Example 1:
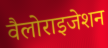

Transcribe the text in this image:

वैलोराइजेशन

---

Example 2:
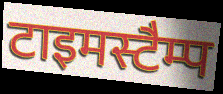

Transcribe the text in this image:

टाइमस्टैम्प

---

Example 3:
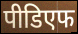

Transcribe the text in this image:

पीडिएफ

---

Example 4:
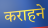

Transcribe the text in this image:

कराहने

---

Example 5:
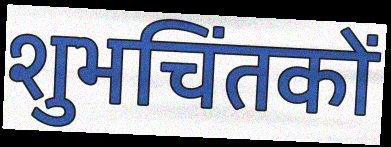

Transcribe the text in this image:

शुभचिंतकों